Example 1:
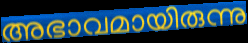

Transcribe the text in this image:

അഭാവമായിരുന്നു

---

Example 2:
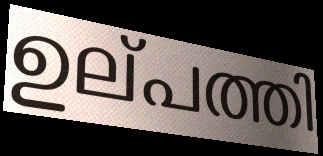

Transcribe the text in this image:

ഉല്‌പത്തി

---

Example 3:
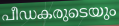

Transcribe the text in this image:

പീഡകരുടെയും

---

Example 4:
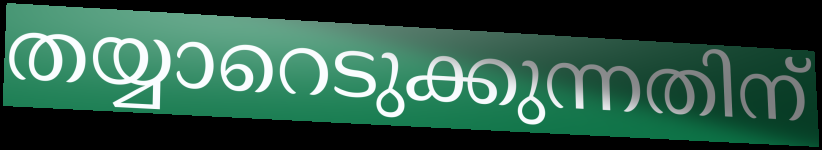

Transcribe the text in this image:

തയ്യാറെടുക്കുന്നതിന്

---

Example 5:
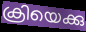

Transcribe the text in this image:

ക്രിയെക്കു